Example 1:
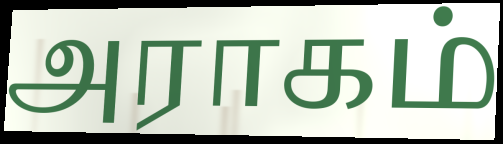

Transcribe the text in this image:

அராகம்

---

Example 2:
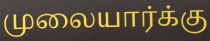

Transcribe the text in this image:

முலையார்க்கு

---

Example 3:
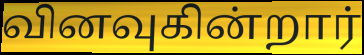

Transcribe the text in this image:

வினவுகின்றார்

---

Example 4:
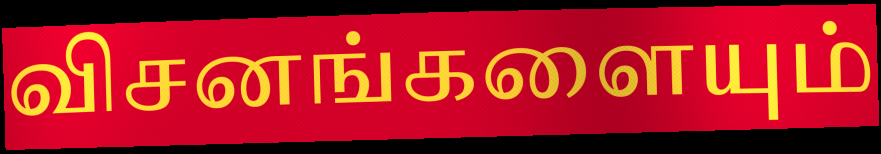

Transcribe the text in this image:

விசனங்களையும்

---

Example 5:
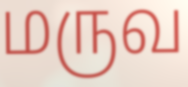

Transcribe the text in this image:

மருவ